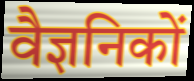
वैज्ञनिकों